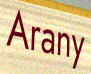
Arany